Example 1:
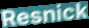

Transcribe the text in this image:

Resnick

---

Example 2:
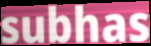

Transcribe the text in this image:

subhas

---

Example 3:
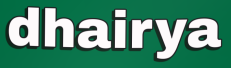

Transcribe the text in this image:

dhairya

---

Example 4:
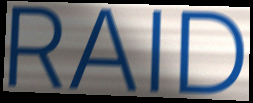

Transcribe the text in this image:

RAID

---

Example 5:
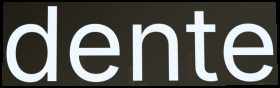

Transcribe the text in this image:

dente